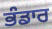
ਭੰਡਾਰ